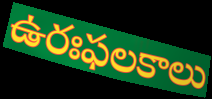
ఉరఃఫలకాలు